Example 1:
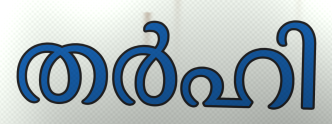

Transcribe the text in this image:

തർഹി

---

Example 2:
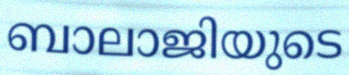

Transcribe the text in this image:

ബാലാജിയുടെ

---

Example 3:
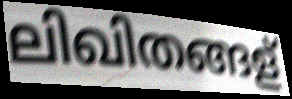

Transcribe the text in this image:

ലിഖിതങ്ങള്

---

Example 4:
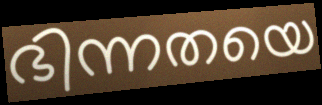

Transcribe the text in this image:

ഭിന്നതയെ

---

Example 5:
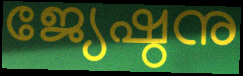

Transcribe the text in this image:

ജ്യേഷ്ഠനു